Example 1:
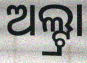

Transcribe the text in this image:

ଅଲ୍ଟ୍ରା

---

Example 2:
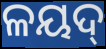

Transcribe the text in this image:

ଳୟଦ୍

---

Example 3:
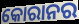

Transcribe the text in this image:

କୋରାନର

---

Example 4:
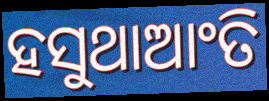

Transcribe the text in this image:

ହସୁଥାଆଂତି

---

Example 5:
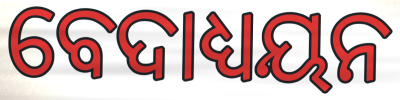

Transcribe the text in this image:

ବେଦାଧ୍ୟୟନ